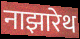
नाझारेथ